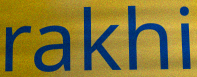
rakhi